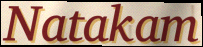
Natakam